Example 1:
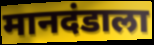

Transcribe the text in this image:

मानदंडाला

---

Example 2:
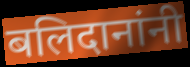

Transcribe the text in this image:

बलिदानांनी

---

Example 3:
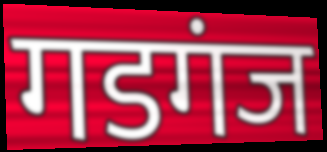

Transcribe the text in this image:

गडगंज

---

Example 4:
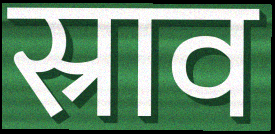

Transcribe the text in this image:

स्राव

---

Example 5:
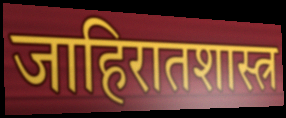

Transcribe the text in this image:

जाहिरातशास्त्र